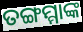
ତଙ୍ଗମ୍ମାଙ୍କ